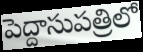
పెద్దాసుపత్రిలో